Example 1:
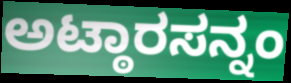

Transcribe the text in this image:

ಅಟ್ಠಾರಸನ್ನಂ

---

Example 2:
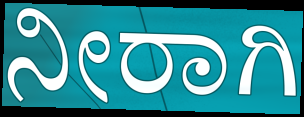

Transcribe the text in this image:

ನೀರಾಗಿ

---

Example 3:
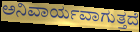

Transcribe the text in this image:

ಅನಿವಾರ್ಯವಾಗುತ್ತದೆ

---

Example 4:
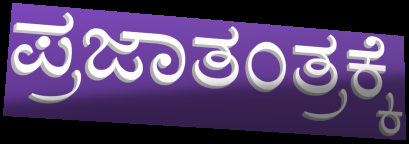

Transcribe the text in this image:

ಪ್ರಜಾತಂತ್ರಕ್ಕೆ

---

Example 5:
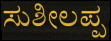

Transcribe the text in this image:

ಸುಶೀಲಪ್ಪ